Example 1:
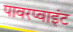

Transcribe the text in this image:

पावरप्वाइंट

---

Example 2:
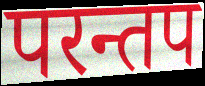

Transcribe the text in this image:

परन्तप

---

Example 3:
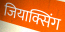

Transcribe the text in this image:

जियाक्सिंग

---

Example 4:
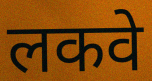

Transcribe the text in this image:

लकवे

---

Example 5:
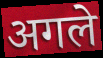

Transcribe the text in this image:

अगले